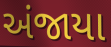
અંજાયા